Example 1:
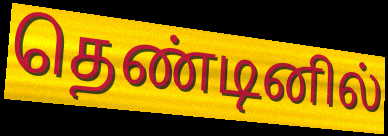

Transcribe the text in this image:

தெண்டினில்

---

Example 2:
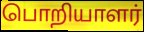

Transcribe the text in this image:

பொறியாளர்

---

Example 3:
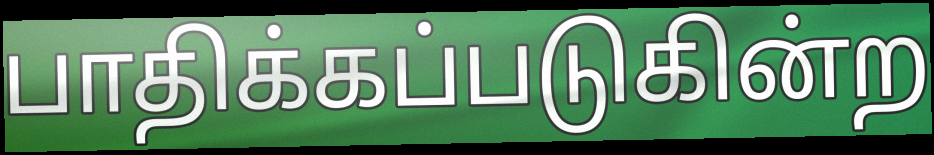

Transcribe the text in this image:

பாதிக்கப்படுகின்ற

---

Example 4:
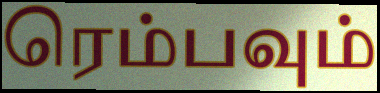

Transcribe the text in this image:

ரெம்பவும்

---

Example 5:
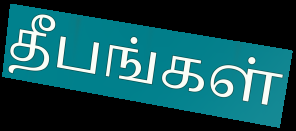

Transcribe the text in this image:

தீபங்கள்